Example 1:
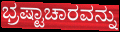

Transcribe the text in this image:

ಭ್ರಷ್ಟಾಚಾರವನ್ನು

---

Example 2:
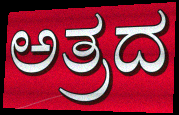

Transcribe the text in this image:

ಅತ್ರದ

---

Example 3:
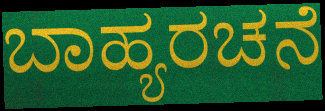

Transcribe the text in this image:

ಬಾಹ್ಯರಚನೆ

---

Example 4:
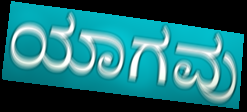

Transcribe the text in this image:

ಯಾಗವು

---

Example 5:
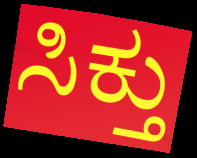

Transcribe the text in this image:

ಸಿಕ್ತು